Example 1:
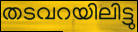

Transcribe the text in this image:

തടവറയിലിട്ടു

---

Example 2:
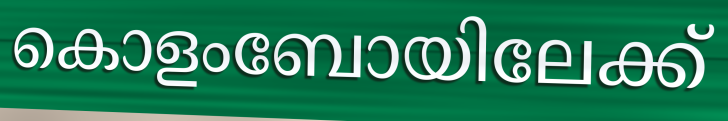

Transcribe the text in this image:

കൊളംബോയിലേക്ക്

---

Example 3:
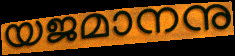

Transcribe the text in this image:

യജമാനനു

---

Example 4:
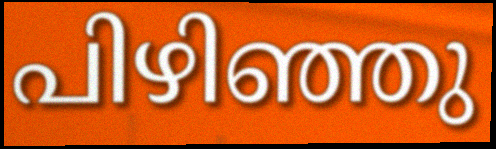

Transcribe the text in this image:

പിഴിഞ്ഞു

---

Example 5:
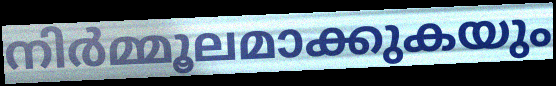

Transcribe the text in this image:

നിർമ്മൂലമാക്കുകയും